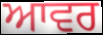
ਆਵਰ